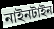
নাইনটাইন